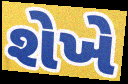
શેખે